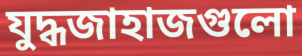
যুদ্ধজাহাজগুলো